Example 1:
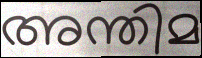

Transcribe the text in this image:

അന്തിമ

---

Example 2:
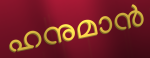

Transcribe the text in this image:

ഹനുമാൻ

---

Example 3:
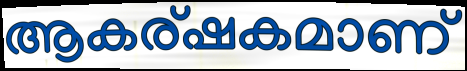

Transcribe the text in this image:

ആകര്ഷകമാണ്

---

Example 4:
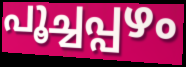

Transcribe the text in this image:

പൂച്ചപ്പഴം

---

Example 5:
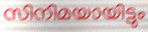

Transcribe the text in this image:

സിനിമയായിട്ടും